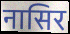
नासिर